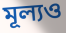
মূল্যও